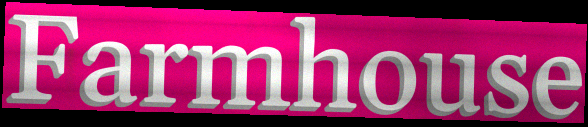
Farmhouse